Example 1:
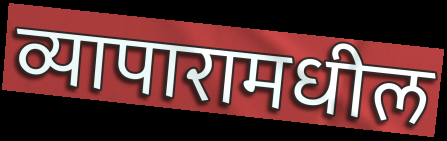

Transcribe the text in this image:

व्यापारामधील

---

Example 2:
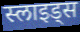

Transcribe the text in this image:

स्लाइड्स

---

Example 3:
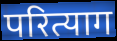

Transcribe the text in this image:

परित्याग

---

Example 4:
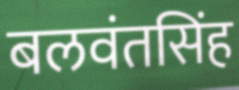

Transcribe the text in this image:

बलवंतसिंह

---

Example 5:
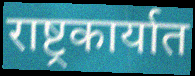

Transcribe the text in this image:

राष्ट्रकार्यात